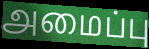
அமைப்பு